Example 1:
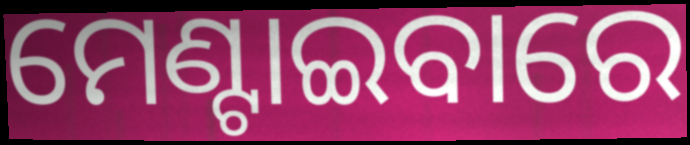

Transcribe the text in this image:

ମେଣ୍ଟାଇବାରେ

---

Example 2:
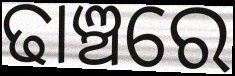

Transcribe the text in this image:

ଢାଞ୍ଚରେ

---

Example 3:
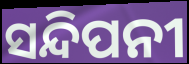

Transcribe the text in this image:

ସନ୍ଦିପନୀ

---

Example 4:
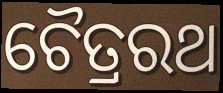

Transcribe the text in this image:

ଚୈତ୍ରରଥ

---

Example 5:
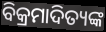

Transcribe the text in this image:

ବିକ୍ରମାଦିତ୍ୟଙ୍କ